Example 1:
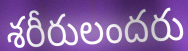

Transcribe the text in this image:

శరీరులందరు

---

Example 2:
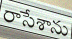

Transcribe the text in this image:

రాసేశాను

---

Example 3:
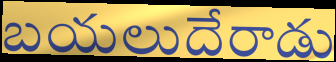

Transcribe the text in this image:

బయలుదేరాడు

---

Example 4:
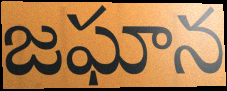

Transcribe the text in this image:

జఘాన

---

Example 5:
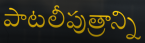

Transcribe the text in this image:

పాటలీపుత్రాన్ని